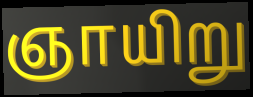
ஞாயிறு